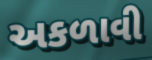
અકળાવી